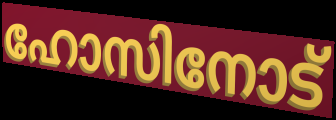
ഹോസിനോട്